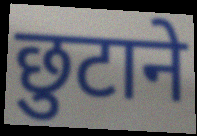
छुटाने